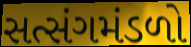
સત્સંગમંડળો